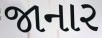
જાનાર